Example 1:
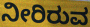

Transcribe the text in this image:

ನೀರಿರುವ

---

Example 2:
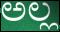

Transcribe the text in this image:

ಅಲ್ಲ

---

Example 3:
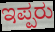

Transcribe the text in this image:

ಇಪ್ಪರು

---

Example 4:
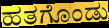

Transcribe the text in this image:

ಹತಗೊಂಡು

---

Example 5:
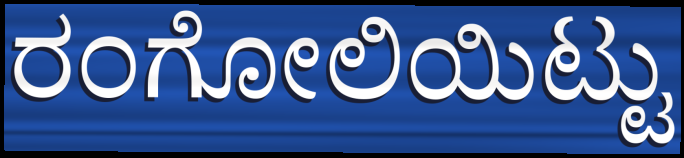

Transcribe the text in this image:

ರಂಗೋಲಿಯಿಟ್ಟು